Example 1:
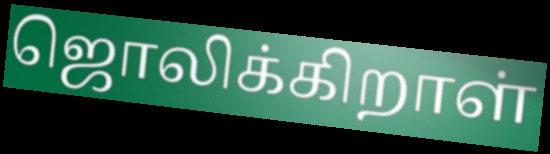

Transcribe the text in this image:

ஜொலிக்கிறாள்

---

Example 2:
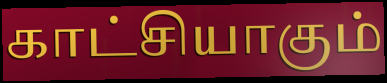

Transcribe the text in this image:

காட்சியாகும்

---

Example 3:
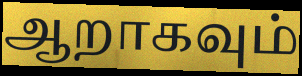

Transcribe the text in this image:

ஆறாகவும்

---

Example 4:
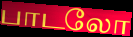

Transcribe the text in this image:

பாடலோ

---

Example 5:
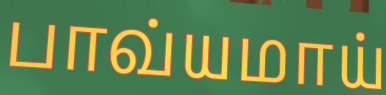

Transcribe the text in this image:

பாவ்யமாய்